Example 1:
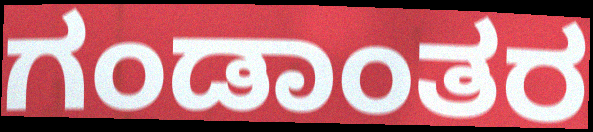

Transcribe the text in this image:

ಗಂಡಾಂತರ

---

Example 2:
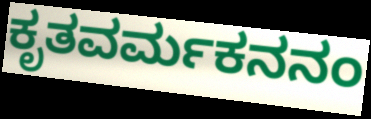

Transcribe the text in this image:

ಕೃತವರ್ಮಕನನಂ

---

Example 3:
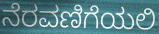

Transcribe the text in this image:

ನೆರವಣಿಗೆಯಲಿ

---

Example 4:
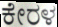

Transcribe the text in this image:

ಕೇರಳ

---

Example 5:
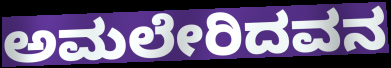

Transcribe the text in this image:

ಅಮಲೇರಿದವನ